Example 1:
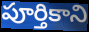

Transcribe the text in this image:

పూర్తికాని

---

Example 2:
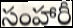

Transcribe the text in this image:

సంహారీ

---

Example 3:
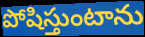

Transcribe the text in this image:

పోషిస్తుంటాను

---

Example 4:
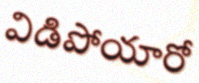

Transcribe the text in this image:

విడిపోయారో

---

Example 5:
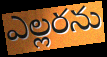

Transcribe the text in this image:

ఎల్లరను